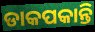
ଡାକପକାନ୍ତି